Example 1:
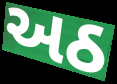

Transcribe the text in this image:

અઠ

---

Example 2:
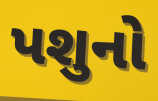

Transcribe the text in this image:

પશુનો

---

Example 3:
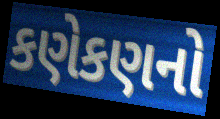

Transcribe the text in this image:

કણેકણનો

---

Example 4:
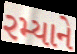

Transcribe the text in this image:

રમ્યાને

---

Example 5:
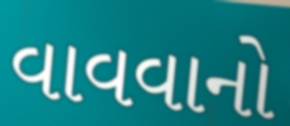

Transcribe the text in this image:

વાવવાનો